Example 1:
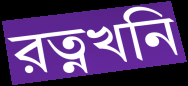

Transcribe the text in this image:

রত্নখনি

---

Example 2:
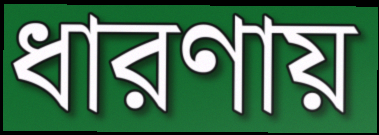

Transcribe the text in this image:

ধারণায়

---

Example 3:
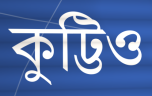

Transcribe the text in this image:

কুট্টিও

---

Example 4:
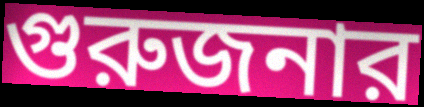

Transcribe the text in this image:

গুরুজনার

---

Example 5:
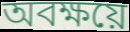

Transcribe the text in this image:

অবক্ষয়ে